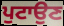
ਪੁਟਾਉਣ